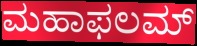
ಮಹಾಫಲಮ್